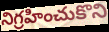
నిగ్రహించుకొని